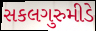
સકલગુરુમીડે